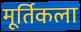
मूर्तिकला